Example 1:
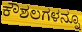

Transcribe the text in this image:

ಕೌಶಲಗಳನ್ನೂ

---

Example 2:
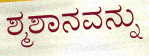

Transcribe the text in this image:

ಶ್ಮಶಾನವನ್ನು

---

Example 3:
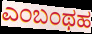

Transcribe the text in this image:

ಎಂಬಂಥಹ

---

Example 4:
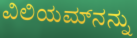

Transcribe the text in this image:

ವಿಲಿಯಮ್‌ನನ್ನು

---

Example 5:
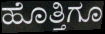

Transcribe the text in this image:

ಹೊತ್ತಿಗೂ